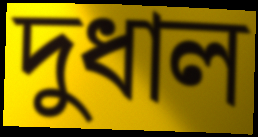
দুধাল